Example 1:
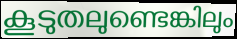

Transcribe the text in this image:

കൂടുതലുണ്ടെങ്കിലും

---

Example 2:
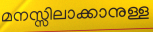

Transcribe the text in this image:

മനസ്സിലാക്കാനുള്ള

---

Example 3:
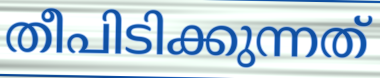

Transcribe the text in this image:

തീപിടിക്കുന്നത്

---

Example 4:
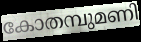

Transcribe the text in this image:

കോതമ്പുമണി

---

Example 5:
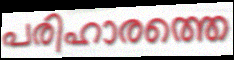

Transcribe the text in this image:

പരിഹാരത്തെ